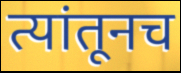
त्यांतूनच